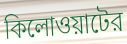
কিলোওয়াটের